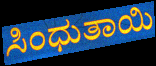
ಸಿಂಧುತಾಯಿ